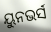
ୟୁନଭର୍ସ